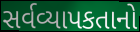
સર્વવ્યાપકતાનો